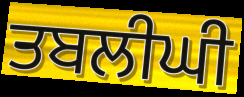
ਤਬਲੀਘੀ